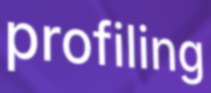
profiling